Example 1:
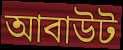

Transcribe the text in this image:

আবাউট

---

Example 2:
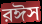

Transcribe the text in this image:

রঈস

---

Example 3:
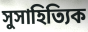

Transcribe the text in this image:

সুসাহিত্যিক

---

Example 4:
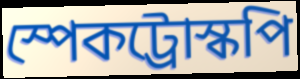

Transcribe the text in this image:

স্পেকট্রোস্কপি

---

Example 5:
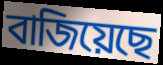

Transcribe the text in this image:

বাজিয়েছে